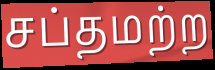
சப்தமற்ற